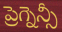
ప్రెగ్నెన్సీ